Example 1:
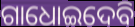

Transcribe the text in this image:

ଗାଧୋଇଦେବି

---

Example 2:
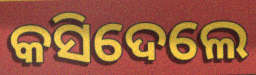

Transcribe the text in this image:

କସିଦେଲେ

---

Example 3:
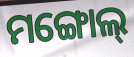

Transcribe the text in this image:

ମଙ୍ଗୋଲ୍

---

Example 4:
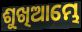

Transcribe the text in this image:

ଶୁଖିଆମ୍ଭେ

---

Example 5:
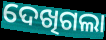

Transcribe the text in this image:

ଦେଖିଗଲା